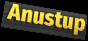
Anustup